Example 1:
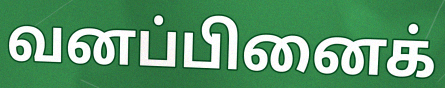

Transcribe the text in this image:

வனப்பினைக்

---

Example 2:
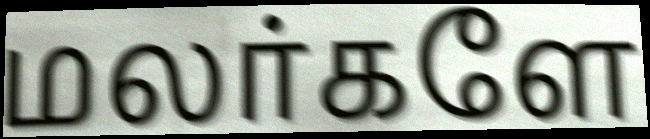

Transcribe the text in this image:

மலர்களே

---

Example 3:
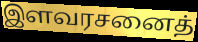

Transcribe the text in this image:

இளவரசனைத்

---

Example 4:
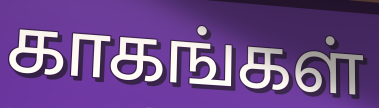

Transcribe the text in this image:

காகங்கள்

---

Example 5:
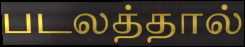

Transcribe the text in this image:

படலத்தால்